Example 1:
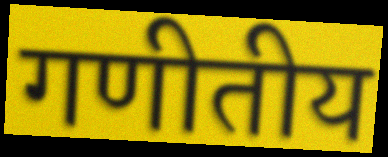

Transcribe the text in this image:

गणीतीय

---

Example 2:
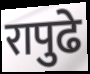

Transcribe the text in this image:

रापुढे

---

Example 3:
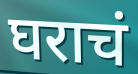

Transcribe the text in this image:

घराचं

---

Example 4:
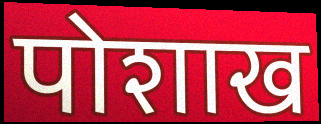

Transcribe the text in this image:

पोशाख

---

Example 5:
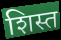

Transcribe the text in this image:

शिस्त